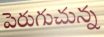
పెరుగుచున్న